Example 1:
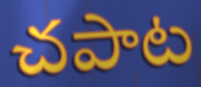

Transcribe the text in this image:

చపాట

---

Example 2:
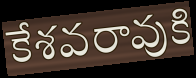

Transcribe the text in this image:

కేశవరావుకి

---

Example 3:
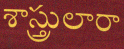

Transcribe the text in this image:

శాస్త్రులారా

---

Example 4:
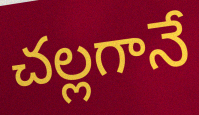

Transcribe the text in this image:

చల్లగానే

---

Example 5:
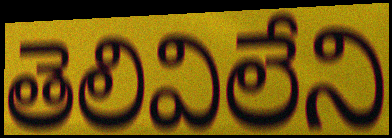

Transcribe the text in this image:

తెలివిలేని